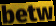
betw